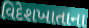
વિદેશખાતાના